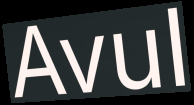
Avul